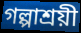
গল্পাশ্রয়ী